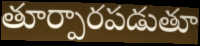
తూర్పారపడుతూ